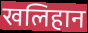
खलिहान